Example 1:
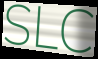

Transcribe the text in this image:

SLC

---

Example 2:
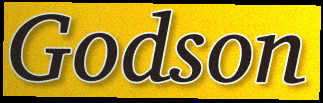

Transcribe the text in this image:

Godson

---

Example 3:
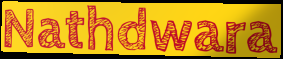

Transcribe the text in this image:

Nathdwara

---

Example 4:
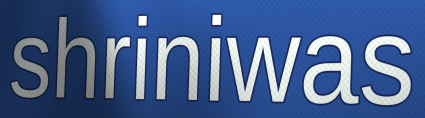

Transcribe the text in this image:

shriniwas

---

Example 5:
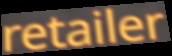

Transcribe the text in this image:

retailer